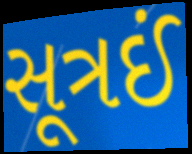
સૂત્રઈં